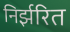
निर्झरित